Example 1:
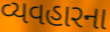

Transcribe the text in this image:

વ્યવહારના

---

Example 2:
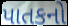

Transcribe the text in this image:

પાતકનો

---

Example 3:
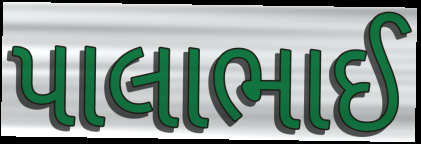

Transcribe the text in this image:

પાલાભાઈ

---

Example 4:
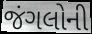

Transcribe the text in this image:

જંગલોની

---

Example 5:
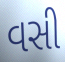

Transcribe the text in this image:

વસી